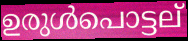
ഉരുൾപൊട്ടല്